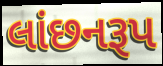
લાંછનરૂપ